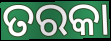
ତରକା